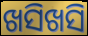
ଖସିଖସି